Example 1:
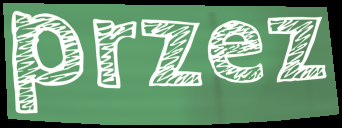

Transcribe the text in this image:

przez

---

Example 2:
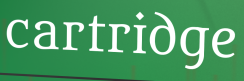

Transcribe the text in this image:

cartridge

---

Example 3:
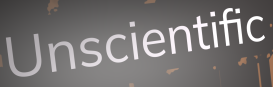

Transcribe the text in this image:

Unscientific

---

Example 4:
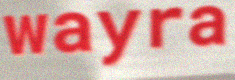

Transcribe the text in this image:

wayra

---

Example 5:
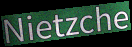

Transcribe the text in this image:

Nietzche